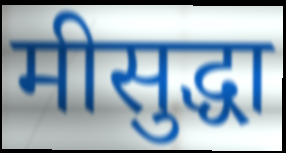
मीसुद्धा